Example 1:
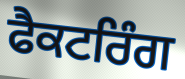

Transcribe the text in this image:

ਫੈਕਟਰਿੰਗ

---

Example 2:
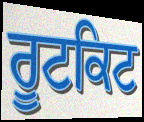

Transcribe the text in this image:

ਰੂਟਕਿਟ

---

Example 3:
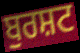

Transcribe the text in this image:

ਬੁਰਸ਼ਟ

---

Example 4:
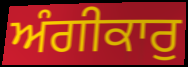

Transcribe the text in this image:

ਅੰਗੀਕਾਰੁ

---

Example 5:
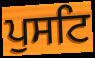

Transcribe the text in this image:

ਪੁਸਟਿ